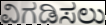
ವಿಗಡಿಸಲು